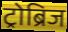
ट्रोब्रिज